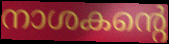
നാശകന്റെ